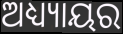
ଅଧ୍ୟ୍ୟାୟର